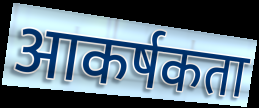
आकर्षकता